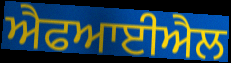
ਐਫਆਈਐਲ